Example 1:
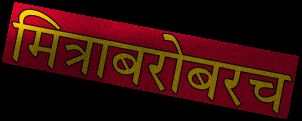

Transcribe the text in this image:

मित्राबरोबरच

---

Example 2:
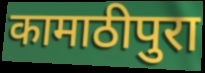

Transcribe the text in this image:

कामाठीपुरा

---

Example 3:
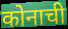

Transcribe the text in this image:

कोनाची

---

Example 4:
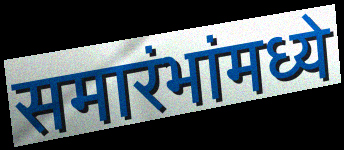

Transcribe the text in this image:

समारंभांमध्ये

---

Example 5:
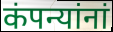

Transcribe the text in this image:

कंपन्यांनां